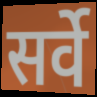
सर्वे